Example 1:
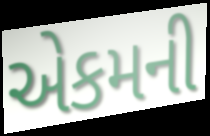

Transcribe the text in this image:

એકમની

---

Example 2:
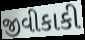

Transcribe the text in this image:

જીવીકાકી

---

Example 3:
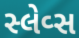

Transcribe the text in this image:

સ્લેવ્સ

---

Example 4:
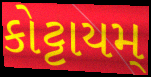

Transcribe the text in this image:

કોટ્ટાયમ્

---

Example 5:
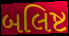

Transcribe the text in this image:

બલિષ્ટ